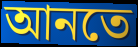
আনতে